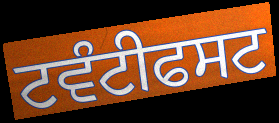
ਟਵੰਟੀਫਸਟ